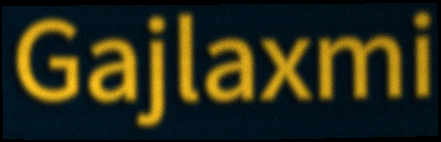
Gajlaxmi